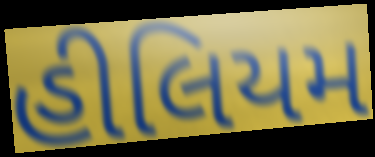
હીલિયમ